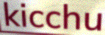
kicchu